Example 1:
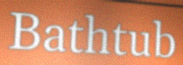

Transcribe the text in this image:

Bathtub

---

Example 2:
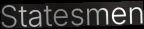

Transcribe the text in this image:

Statesmen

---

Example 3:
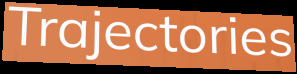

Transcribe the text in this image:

Trajectories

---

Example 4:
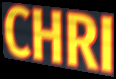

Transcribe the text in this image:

CHRI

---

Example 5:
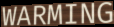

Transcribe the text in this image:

WARMING